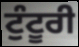
ਟੁੰਟੂਰੀ